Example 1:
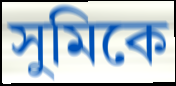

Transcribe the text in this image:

সুমিকে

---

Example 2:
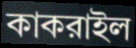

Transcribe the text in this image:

কাকরাইল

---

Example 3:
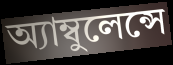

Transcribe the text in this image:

অ্যাম্বুলেন্সে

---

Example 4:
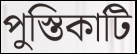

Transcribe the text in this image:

পুস্তিকাটি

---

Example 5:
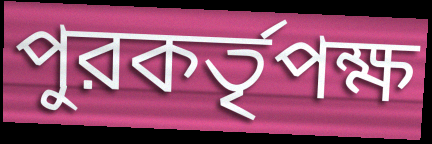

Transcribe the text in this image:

পুরকর্তৃপক্ষ